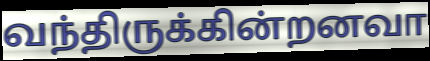
வந்திருக்கின்றனவா